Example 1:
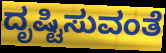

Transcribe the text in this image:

ದೃಷ್ಟಿಸುವಂತೆ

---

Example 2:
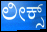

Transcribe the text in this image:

ಲೀಕ್ಸ್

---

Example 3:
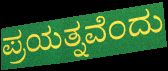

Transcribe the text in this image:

ಪ್ರಯತ್ನವೆಂದು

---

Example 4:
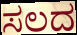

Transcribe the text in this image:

ಸಲದ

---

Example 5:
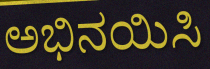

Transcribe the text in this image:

ಅಭಿನಯಿಸಿ